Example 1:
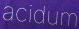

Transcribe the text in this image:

acidum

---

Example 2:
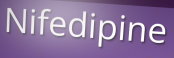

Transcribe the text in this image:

Nifedipine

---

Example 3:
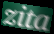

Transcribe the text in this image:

zita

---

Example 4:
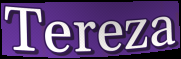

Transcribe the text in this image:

Tereza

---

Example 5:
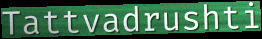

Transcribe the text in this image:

Tattvadrushti